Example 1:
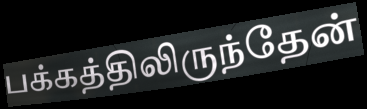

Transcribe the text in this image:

பக்கத்திலிருந்தேன்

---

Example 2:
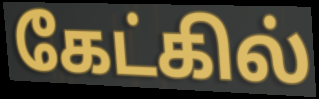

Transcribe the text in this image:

கேட்கில்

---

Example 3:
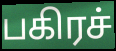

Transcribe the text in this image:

பகிரச்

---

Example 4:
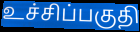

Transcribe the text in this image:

உச்சிப்பகுதி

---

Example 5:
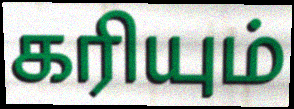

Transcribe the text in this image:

கரியும்